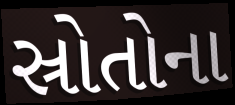
સ્રોતોના